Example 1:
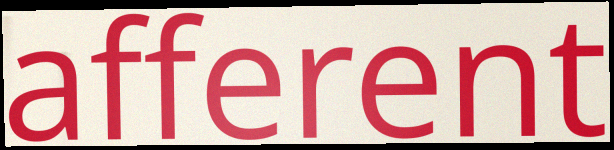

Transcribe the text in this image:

afferent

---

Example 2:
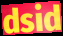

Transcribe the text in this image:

dsid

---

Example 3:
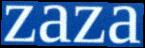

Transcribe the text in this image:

zaza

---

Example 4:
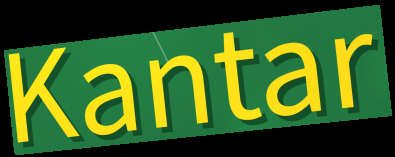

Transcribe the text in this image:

Kantar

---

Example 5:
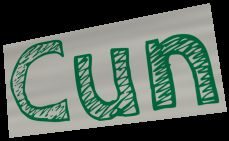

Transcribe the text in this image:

Cun